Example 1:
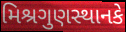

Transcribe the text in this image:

મિશ્રગુણસ્થાનકે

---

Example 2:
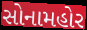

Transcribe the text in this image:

સોનામહોર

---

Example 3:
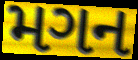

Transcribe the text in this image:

મગન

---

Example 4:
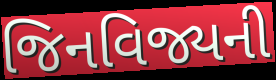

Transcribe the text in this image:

જિનવિજ્યની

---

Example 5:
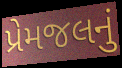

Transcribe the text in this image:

પ્રેમજલનું